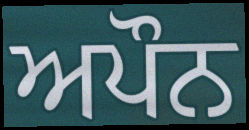
ਅਪੌਨ